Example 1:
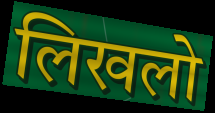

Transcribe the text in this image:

लिखलो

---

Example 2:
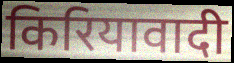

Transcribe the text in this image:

किरियावादी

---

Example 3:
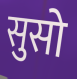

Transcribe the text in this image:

सुसो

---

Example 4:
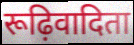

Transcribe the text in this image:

रूढ़िवादिता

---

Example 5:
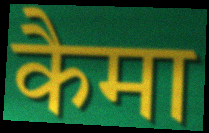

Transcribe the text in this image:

कैमा